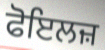
ਫੋਇਲਜ਼